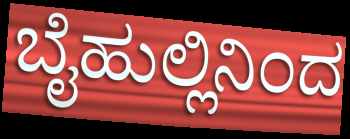
ಬೈಹುಲ್ಲಿನಿಂದ